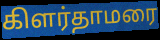
கிளர்தாமரை